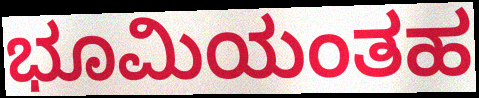
ಭೂಮಿಯಂತಹ